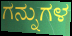
ಗನ್ನುಗಳ